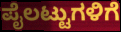
ಪೈಲಟ್ಟುಗಳಿಗೆ